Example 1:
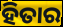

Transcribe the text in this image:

ହିତାର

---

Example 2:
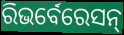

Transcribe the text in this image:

ରିଭର୍ବେରେସନ୍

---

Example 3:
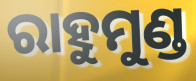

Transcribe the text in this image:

ରାହୁମୁଣ୍ଡ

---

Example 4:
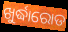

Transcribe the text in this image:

ଖୁର୍ଦ୍ଧାରୋଡ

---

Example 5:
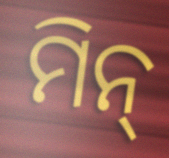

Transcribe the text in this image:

ମିନ୍